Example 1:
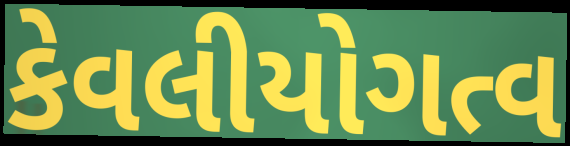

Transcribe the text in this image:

કેવલીયોગત્વ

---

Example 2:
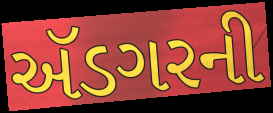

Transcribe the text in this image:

ઍડગરની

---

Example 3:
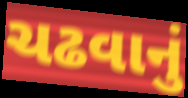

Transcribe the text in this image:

ચઢવાનું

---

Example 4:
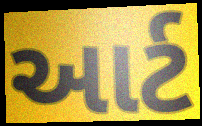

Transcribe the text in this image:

આર્ટ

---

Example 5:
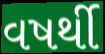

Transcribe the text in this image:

વષર્થી